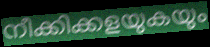
നീക്കിക്കളയുകയും